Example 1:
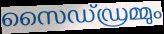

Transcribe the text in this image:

സൈഡ്ഡ്രമ്മും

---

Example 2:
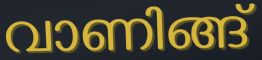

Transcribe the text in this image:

വാണിങ്ങ്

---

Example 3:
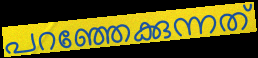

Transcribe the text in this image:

പറഞ്ഞേക്കുന്നത്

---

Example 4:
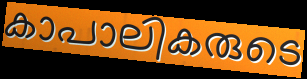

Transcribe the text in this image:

കാപാലികരുടെ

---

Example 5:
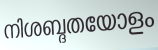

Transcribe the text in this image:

നിശബ്ദതയോളം